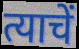
त्याचें